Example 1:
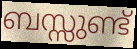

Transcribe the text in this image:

ബസ്സുണ്ട്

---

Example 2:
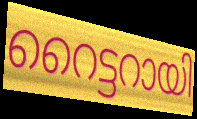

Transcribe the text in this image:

റൈട്ടറായി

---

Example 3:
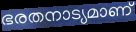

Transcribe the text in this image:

ഭരതനാട്യമാണ്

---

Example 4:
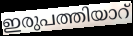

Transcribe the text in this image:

ഇരുപത്തിയാറ്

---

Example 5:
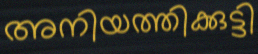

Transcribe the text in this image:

അനിയത്തിക്കുട്ടി